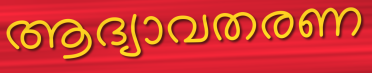
ആദ്യാവതരണ